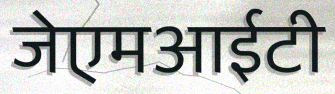
जेएमआईटी